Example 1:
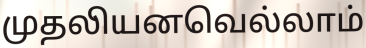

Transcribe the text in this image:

முதலியனவெல்லாம்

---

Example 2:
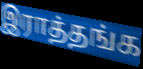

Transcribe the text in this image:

இராத்தங்க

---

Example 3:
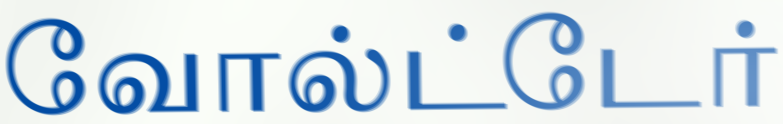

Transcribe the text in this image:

வோல்ட்டேர்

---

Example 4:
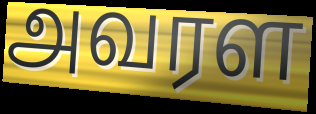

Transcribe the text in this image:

அவரள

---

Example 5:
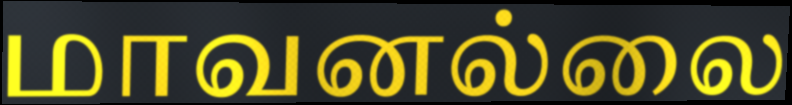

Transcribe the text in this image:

மாவனல்லை